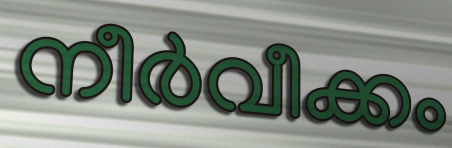
നീർവീക്കം